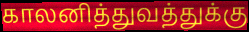
காலனித்துவத்துக்கு